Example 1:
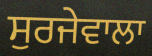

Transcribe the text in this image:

ਸੁਰਜੇਵਾਲਾ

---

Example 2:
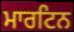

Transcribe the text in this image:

ਮਾਰਟਿਨ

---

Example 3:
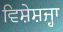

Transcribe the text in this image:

ਵਿਸ਼ੇਸ਼ਜ੍ਹਾ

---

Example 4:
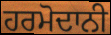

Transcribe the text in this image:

ਹਰਮੋਦਾਨੀ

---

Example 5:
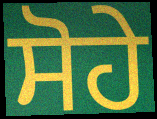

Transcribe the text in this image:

ਸੋਹੇ